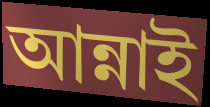
আন্নাই